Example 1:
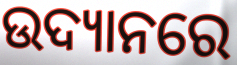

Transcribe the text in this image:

ଉଦ୍ୟାନରେ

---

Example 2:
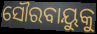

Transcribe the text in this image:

ସୌରବାୟୁକୁ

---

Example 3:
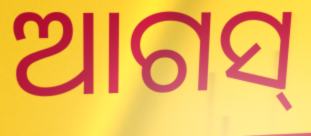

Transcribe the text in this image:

ଆଗସ୍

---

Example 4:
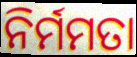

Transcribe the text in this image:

ନିର୍ମମତା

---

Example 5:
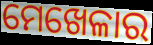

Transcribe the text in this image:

ମେଖେଳାର